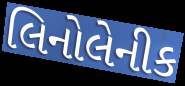
લિનોલેનીક